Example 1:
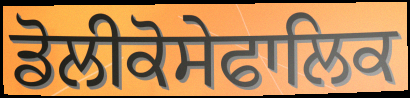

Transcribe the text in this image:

ਡੋਲੀਕੋਸੇਫਾਲਿਕ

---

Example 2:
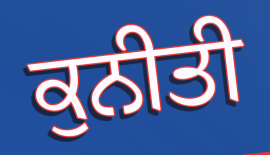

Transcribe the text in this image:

ਕੁਨੀਤੀ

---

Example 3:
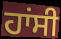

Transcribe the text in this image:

ਹਾਂਸੀ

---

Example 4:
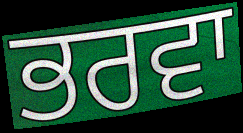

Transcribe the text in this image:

ਭਰਵਾ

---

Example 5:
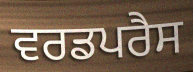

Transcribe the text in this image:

ਵਰਡਪਰੈਸ